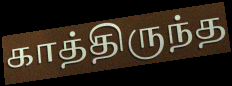
காத்திருந்த